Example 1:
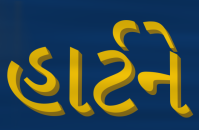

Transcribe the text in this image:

હાર્ટને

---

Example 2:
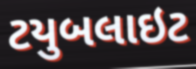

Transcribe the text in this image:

ટયુબલાઇટ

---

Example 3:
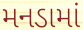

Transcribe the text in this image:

મનડામાં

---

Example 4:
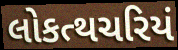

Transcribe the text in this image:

લોકત્થચરિયં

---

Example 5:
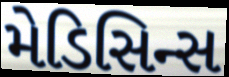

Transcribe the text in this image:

મેડિસિન્સ